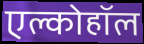
एल्कोहॉल